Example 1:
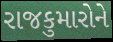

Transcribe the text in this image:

રાજકુમારોને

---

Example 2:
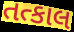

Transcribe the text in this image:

તત્કાલ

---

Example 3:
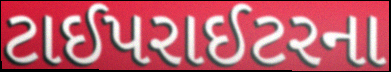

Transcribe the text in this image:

ટાઈપરાઈટરના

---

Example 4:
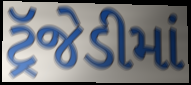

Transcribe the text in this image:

ટ્રૅજેડીમાં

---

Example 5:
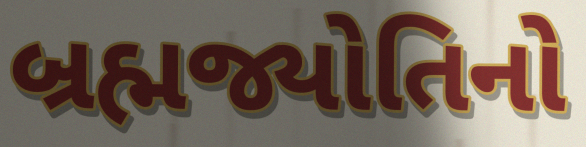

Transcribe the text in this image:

બ્રહ્મજ્યોતિનો